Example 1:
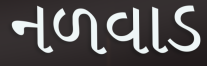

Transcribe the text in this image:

નળવાડ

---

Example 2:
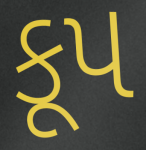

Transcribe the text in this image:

કૂપ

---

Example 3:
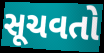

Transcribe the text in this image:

સૂચવતો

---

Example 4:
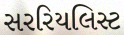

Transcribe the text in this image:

સરરિયલિસ્ટ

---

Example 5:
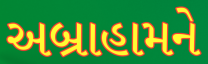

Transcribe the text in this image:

અબ્રાહામને